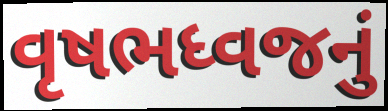
વૃષભધ્વજનું